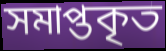
সমাপ্তকৃত